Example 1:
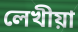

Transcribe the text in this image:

লেখীয়া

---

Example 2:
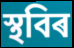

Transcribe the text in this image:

স্থবিৰ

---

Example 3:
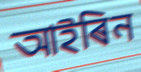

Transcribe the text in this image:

আইৰিন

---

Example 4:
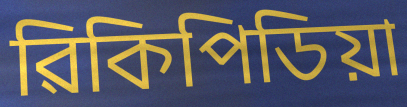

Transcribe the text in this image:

ৱিকিপিডিয়া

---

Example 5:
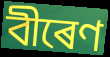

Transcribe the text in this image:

বীৰেণ